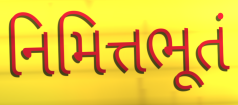
નિમિત્તભૂતં